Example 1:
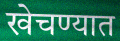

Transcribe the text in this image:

खेचण्यात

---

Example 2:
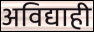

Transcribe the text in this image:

अविद्याही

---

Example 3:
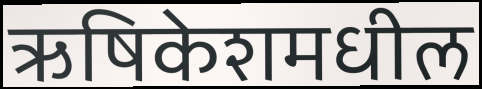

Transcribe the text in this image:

ऋषिकेशमधील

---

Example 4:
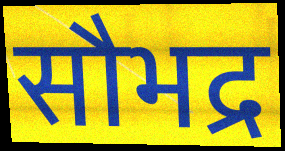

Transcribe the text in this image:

सौभद्र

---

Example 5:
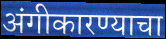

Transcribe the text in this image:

अंगीकारण्याचा